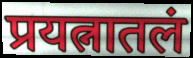
प्रयत्नातलं